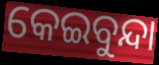
କେଇବୁନ୍ଦା